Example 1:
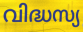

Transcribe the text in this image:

വിദ്ധസ്യ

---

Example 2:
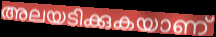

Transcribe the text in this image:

അലയടിക്കുകയാണ്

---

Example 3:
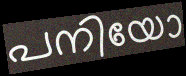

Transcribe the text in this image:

പനിയോ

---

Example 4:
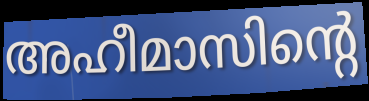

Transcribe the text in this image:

അഹീമാസിന്റെ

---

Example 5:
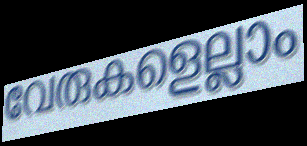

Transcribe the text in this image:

വേരുകളെല്ലാം